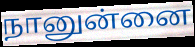
நானுன்னை